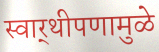
स्वार्थीपणामुळे